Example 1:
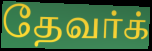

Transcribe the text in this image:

தேவர்க்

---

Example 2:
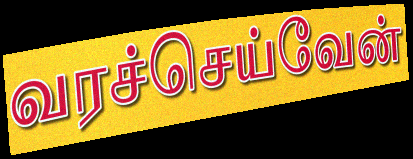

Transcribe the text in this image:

வரச்செய்வேன்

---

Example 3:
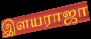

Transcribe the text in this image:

இளயராஜா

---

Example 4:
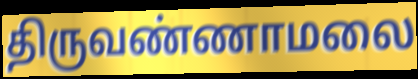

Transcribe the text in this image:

திருவண்ணாமலை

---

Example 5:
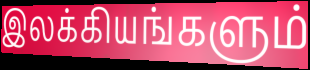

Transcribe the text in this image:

இலக்கியங்களும்